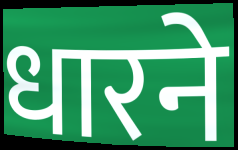
धारने